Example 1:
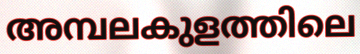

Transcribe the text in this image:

അമ്പലകുളത്തിലെ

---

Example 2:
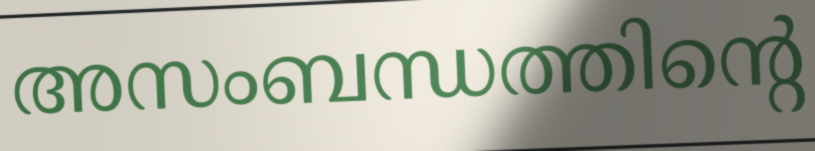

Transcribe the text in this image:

അസംബന്ധത്തിന്റെ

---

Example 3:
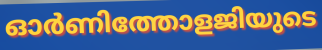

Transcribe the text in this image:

ഓർണിത്തോളജിയുടെ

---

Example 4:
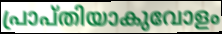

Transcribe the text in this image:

പ്രാപ്തിയാകുവോളം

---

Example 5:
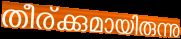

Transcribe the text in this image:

തീര്ക്കുമായിരുന്നു